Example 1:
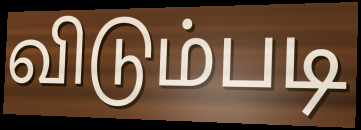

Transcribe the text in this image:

விடும்படி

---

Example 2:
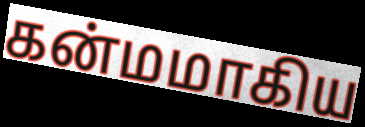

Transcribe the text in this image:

கன்மமாகிய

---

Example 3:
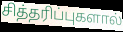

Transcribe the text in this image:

சித்தரிப்புகளால்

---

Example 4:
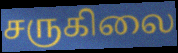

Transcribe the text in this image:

சருகிலை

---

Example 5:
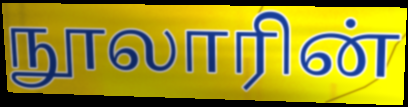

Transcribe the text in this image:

நூலாரின்